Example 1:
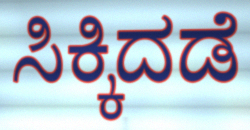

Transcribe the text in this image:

ಸಿಕ್ಕಿದಡೆ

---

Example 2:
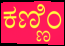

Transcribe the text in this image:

ಕಣ್ಣಿಂ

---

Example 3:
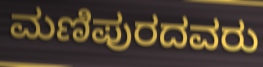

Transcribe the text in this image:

ಮಣಿಪುರದವರು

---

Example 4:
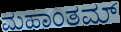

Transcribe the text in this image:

ಮಹಾಂತಮ್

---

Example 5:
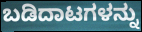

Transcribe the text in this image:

ಬಡಿದಾಟಗಳನ್ನು